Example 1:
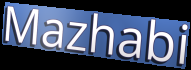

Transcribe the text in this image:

Mazhabi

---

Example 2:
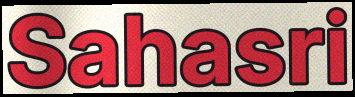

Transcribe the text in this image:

Sahasri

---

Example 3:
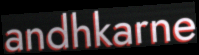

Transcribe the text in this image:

andhkarne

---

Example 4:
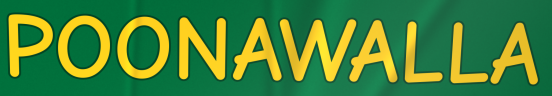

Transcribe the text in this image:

POONAWALLA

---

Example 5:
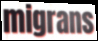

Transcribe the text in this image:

migrans